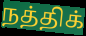
நத்திக்